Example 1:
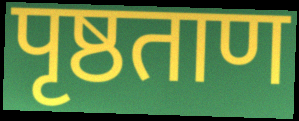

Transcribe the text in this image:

पृष्ठताण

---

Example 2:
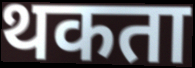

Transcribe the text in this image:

थकता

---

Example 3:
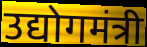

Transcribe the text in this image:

उद्योगमंत्री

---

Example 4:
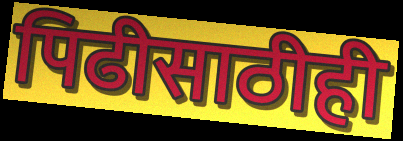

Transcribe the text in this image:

पिढीसाठीही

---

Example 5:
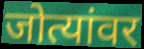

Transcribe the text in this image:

जोत्यांवर